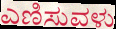
ಎಣಿಸುವಳು